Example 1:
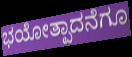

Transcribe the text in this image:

ಭಯೋತ್ಪಾದನೆಗೂ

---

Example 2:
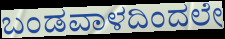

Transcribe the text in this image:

ಬಂಡವಾಳದಿಂದಲೇ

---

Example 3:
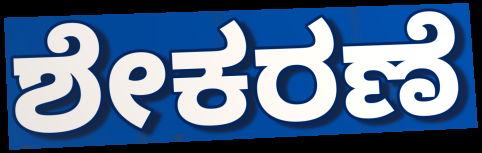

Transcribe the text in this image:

ಶೇಕರಣೆ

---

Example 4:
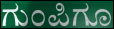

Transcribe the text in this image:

ಗುಂಪಿಗೂ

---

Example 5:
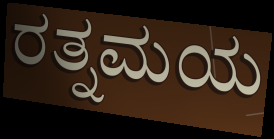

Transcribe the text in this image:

ರತ್ನಮಯ